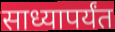
साध्यापर्यंत